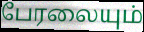
பேரலையும்